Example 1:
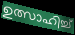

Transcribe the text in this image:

ഉത്സാഹിച്ച്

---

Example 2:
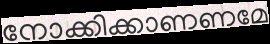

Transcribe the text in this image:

നോക്കിക്കാണണമേ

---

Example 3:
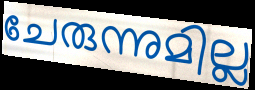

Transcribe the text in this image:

ചേരുന്നുമില്ല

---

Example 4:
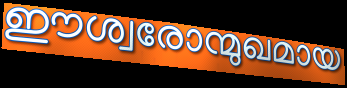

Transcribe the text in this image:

ഈശ്വരോന്മുഖമായ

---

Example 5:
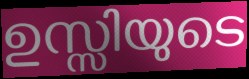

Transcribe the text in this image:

ഉസ്സിയുടെ